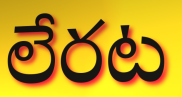
లేరట